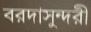
বরদাসুন্দরী